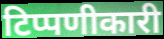
टिप्पणीकारी